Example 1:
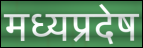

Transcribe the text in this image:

मध्यप्रदेष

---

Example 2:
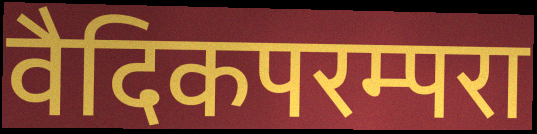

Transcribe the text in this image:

वैदिकपरम्परा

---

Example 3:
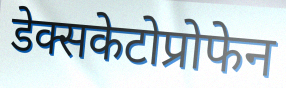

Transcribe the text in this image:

डेक्सकेटोप्रोफेन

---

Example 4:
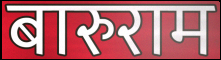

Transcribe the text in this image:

बारुराम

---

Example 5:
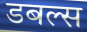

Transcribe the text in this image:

डबल्स